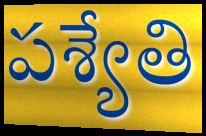
పశ్యేతి